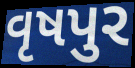
વૃષપુર